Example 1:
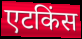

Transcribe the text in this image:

एटकिंस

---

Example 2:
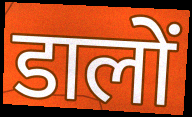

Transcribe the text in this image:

डालों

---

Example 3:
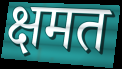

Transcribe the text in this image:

क्षमत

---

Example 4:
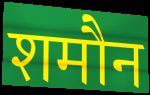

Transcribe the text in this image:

शमौन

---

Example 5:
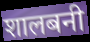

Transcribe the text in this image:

शालबनी